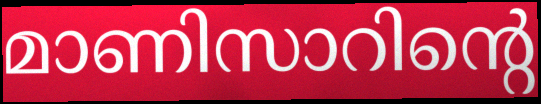
മാണിസാറിന്റെ